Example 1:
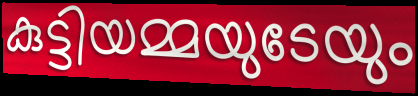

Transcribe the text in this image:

കുട്ടിയമ്മയുടേയും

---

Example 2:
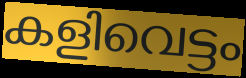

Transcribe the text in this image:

കളിവെട്ടം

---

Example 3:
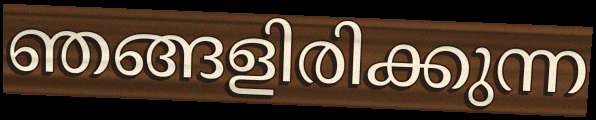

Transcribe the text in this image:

ഞങ്ങളിരിക്കുന്ന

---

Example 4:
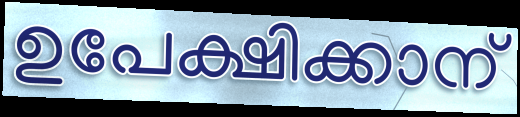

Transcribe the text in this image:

ഉപേക്ഷിക്കാന്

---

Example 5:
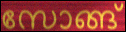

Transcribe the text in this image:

സോങ്ങ്